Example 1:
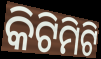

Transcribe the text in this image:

କିଟିମିଟି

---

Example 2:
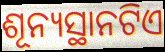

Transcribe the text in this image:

ଶୂନ୍ୟସ୍ଥାନଟିଏ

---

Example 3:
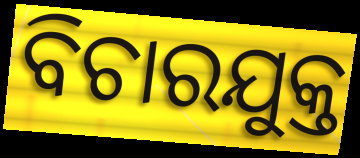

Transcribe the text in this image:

ବିଚାରଯୁକ୍ତ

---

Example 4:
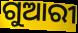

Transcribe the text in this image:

ଗୁଆରୀ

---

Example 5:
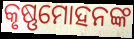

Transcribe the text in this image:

କୃଷ୍ଣମୋହନଙ୍କ